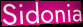
Sidonia